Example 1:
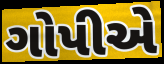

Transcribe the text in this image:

ગોપીએ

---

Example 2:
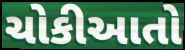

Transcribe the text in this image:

ચોકીઆતો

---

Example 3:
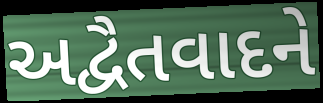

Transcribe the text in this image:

અદ્વૈતવાદને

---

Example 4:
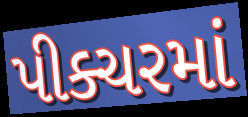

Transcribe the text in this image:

પીક્ચરમાં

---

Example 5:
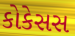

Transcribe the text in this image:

કોકેસસ